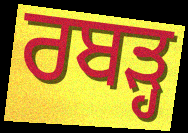
ਰਬੜ੍ਹ